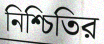
নিশ্চিতির